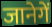
जानेगें